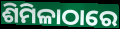
ଶିମିଳାଠାରେ